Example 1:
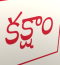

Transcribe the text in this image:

కక్షాం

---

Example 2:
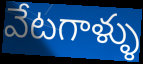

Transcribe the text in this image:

వేటగాళ్ళు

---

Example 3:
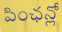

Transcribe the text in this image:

పింఛన్లో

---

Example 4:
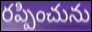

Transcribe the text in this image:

రప్పించును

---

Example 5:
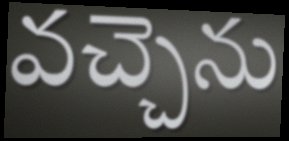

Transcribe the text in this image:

వచ్చెను